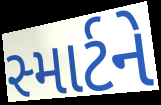
સ્માર્ટને